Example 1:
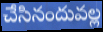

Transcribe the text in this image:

చేసినందువల్ల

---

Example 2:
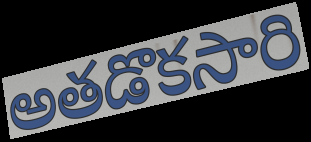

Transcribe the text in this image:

అతడొకసారి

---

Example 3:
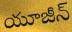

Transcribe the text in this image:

యూజీన్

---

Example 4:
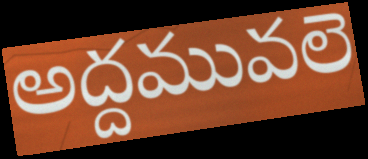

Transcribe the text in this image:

అద్దమువలె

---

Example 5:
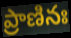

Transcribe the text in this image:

ప్రాణినః